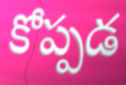
కోప్పడ